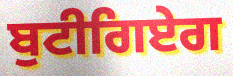
ਬੁਟੀਗਿਏਗ